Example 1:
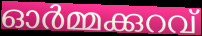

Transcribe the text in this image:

ഓർമ്മക്കുറവ്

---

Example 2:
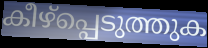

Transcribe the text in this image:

കീഴ്പ്പെടുത്തുക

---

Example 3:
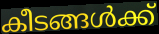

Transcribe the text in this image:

കീടങ്ങൾക്ക്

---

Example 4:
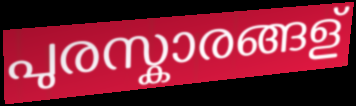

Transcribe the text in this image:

പുരസ്കാരങ്ങള്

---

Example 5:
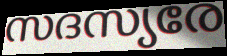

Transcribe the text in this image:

സദസ്യരേ